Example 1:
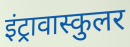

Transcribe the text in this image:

इंट्रावास्कुलर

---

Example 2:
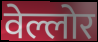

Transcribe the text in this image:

वेल्लोर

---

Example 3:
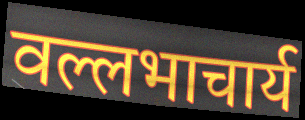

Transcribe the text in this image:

वल्‍लभाचार्य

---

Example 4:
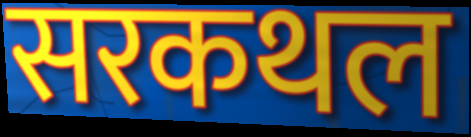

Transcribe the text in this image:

सरकथल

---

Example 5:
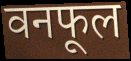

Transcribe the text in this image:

वनफूल